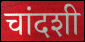
चांदशी